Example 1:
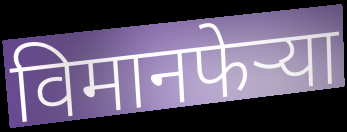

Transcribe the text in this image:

विमानफेऱ्या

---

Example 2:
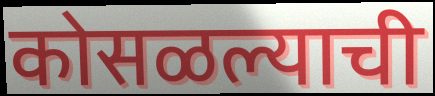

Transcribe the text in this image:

कोसळल्याची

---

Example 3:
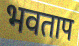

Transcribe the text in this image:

भवताप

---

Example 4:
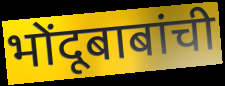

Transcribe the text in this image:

भोंदूबाबांची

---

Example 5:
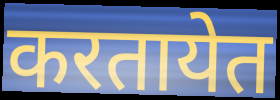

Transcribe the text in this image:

करतायेत